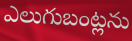
ఎలుగుబంట్లను